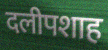
दलीपशाह